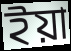
ইয়া